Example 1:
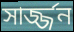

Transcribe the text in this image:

সার্জ্জন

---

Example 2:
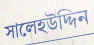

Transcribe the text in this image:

সালেহউদ্দিন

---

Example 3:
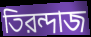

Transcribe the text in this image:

তিরন্দাজ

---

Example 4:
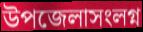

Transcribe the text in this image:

উপজেলাসংলগ্ন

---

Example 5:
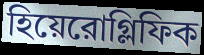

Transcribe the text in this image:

হিয়েরোগ্লিফিক